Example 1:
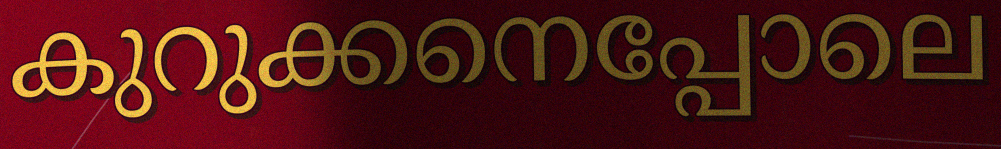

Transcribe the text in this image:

കുറുക്കനെപ്പോലെ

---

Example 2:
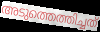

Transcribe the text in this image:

അടുത്തെത്തിച്ചത്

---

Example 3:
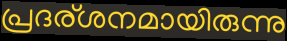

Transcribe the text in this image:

പ്രദര്ശനമായിരുന്നു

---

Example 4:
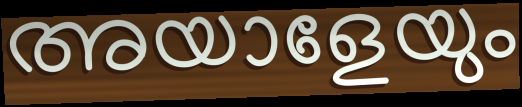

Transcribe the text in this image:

അയാളേയും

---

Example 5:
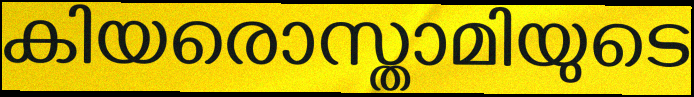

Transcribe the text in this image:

കിയരൊസ്താമിയുടെ